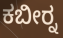
ಕಬೀರ್‍ನ